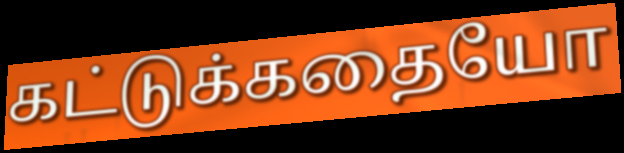
கட்டுக்கதையோ